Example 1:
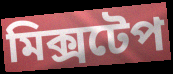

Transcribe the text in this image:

মিক্সটেপ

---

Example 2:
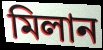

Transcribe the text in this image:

মিলান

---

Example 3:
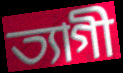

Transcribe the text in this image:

ত্যাগী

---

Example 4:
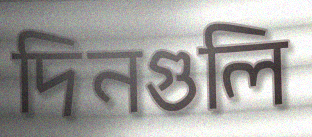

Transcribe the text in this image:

দিনগুলি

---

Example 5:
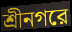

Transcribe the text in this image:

শ্রীনগরে